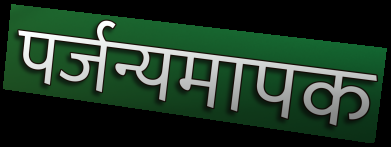
पर्जन्यमापक